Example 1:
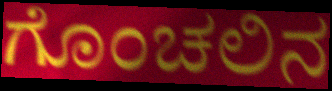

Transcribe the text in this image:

ಗೊಂಚಲಿನ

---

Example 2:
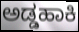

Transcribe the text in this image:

ಅಡ್ಡಹಾಕಿ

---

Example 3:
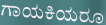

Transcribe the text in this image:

ಗಾಯಕಿಯರೂ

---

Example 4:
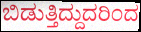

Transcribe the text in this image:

ಬಿಡುತ್ತಿದ್ದುದರಿಂದ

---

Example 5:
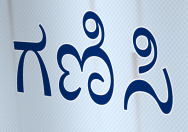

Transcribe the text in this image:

ಗಣಿಸಿ